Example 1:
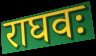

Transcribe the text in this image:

राघवः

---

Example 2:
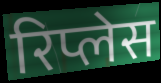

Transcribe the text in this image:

रिप्लेस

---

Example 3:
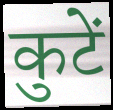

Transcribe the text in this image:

कुटें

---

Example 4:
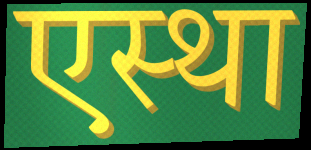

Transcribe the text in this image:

एस्था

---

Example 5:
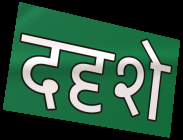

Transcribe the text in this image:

ददृशे